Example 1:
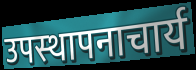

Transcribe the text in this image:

उपस्थापनाचार्य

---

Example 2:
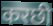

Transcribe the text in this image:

करछी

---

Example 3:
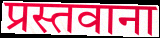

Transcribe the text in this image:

प्रस्तवाना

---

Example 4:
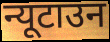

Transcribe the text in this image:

न्यूटाउन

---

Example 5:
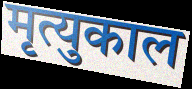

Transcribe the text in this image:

मृत्युकाल